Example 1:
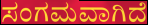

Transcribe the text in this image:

ಸಂಗಮವಾಗಿದೆ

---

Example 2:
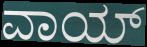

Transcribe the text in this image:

ವಾಯ್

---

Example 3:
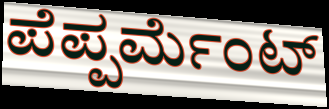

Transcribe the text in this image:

ಪೆಪ್ಪರ್ಮೆಂಟ್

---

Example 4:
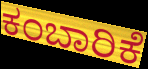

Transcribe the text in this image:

ಕಂಬಾರಿಕೆ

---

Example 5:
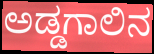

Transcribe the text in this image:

ಅಡ್ಡಗಾಲಿನ